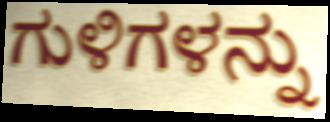
ಗುಳಿಗಳನ್ನು